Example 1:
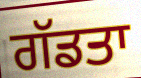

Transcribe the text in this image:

ਗੱਡਤਾ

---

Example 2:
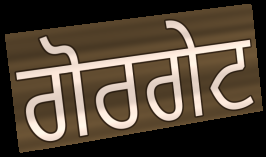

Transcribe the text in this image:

ਗੋਰਗੇਟ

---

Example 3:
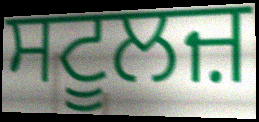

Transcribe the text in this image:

ਸਟੂਲਜ਼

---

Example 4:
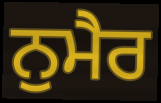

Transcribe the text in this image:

ਨੁਮੈਰ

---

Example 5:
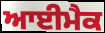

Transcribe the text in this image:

ਆਈਮੈਕ